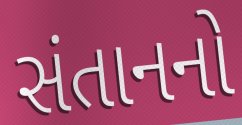
સંતાનનો